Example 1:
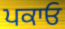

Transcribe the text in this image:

ਪਕਾਓ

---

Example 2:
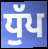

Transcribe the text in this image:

ਧੁੱਪ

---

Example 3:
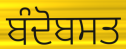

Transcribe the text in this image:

ਬੰਦੋਬਸਤ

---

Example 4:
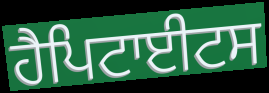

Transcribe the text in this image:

ਹੈਪਿਟਾਈਟਸ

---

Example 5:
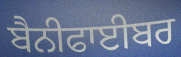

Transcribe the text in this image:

ਬੈਨੀਫਾਈਬਰ